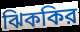
ঝিককির